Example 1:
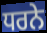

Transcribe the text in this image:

ਧਰਨੇ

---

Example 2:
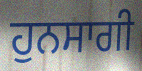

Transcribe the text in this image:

ਹੁਨਸਾਗੀ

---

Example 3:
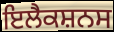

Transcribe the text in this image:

ਇਲੈਕਸ਼ਨਸ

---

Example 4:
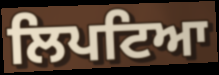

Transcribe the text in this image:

ਲਿਪਟਿਆ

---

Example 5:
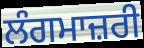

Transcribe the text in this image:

ਲੰਗਮਾਜ਼ਰੀ